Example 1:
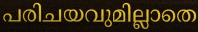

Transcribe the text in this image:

പരിചയവുമില്ലാതെ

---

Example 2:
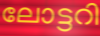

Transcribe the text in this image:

ലോട്ടറി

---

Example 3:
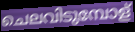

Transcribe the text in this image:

ചെലവിടുമ്പോള്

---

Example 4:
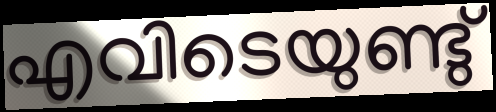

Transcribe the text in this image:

എവിടെയുണ്ടു്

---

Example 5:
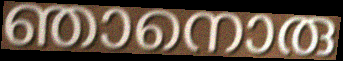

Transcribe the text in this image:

ഞാനൊരു